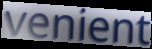
venient